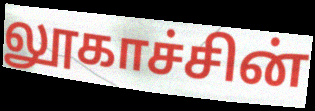
லூகாச்சின்